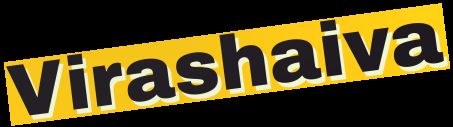
Virashaiva